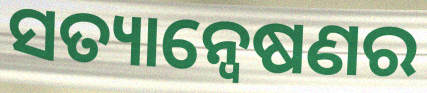
ସତ୍ୟାନ୍ୱେଷଣର